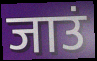
जाउं